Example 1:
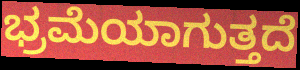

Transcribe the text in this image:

ಭ್ರಮೆಯಾಗುತ್ತದೆ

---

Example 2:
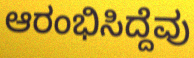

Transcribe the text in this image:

ಆರಂಭಿಸಿದ್ದೆವು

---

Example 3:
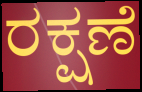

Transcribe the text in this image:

ರಕ್ಷಣೆ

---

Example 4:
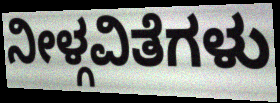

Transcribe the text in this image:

ನೀಳ್ಗವಿತೆಗಳು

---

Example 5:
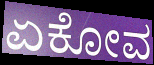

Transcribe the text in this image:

ಏಕೋವ